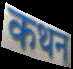
कथन